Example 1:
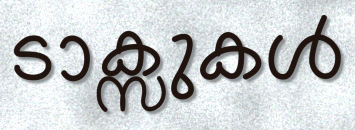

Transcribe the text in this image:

ടാക്സുകൾ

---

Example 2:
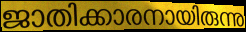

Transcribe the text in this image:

ജാതിക്കാരനായിരുന്നു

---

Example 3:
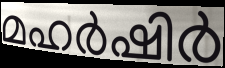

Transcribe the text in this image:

മഹർഷിർ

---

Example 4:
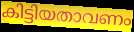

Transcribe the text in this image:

കിട്ടിയതാവണം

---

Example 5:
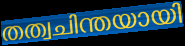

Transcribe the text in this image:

തത്വചിന്തയായി